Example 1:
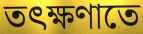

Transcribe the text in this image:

তৎক্ষণাতে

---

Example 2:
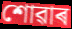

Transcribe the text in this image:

শোৱাৰ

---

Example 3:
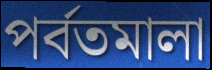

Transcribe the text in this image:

পৰ্বতমালা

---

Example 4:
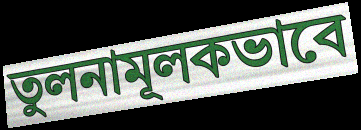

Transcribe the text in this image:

তুলনামূলকভাবে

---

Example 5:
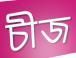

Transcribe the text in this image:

চীজ